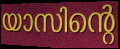
യാസിന്റെ